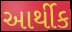
આર્થીક